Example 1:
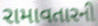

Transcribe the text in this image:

રામાવતારની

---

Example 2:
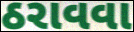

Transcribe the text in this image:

ઠરાવવા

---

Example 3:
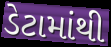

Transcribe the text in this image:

ડેટામાંથી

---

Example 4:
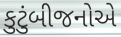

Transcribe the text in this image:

કુટુંબીજનોએ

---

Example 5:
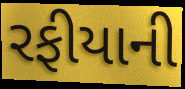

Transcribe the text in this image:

રફીયાની